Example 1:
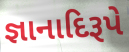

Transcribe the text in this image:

જ્ઞાનાદિરૂપે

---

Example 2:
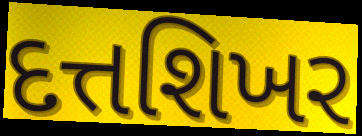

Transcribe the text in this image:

દત્તશિખર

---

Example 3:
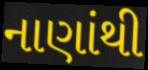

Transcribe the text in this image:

નાણાંથી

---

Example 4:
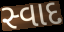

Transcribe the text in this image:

સ્વાદ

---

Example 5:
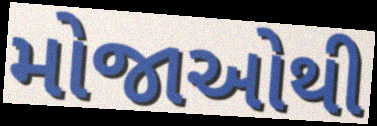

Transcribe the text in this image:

મોજાઓથી